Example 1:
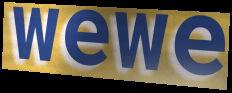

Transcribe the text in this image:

wewe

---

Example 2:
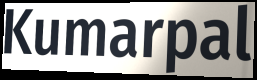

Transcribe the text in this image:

Kumarpal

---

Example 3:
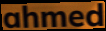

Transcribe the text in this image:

ahmed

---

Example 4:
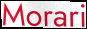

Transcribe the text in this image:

Morari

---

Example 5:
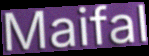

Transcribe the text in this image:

Maifal